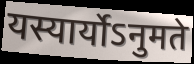
यस्यार्योऽनुमते